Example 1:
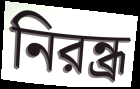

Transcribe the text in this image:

নিরন্ধ্র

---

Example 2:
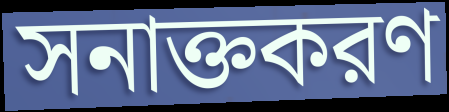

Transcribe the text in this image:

সনাক্তকরণ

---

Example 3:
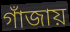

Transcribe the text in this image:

গাঁজায়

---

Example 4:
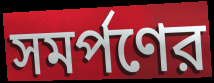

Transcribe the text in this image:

সমর্পণের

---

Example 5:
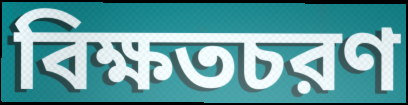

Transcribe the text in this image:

বিক্ষতচরণ